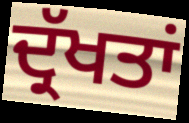
ਦ੍ਰੱਖਤਾਂ